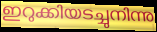
ഇറുക്കിയടച്ചുനിന്നു